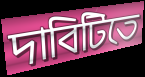
দাবিটিতে